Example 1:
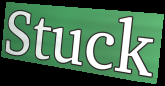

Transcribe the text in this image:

Stuck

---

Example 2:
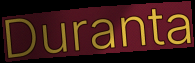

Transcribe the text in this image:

Duranta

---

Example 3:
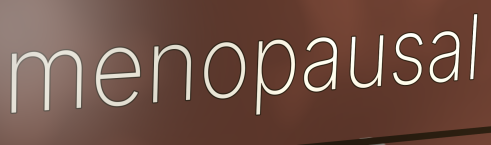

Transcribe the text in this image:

menopausal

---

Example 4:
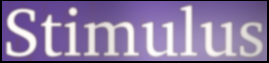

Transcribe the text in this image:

Stimulus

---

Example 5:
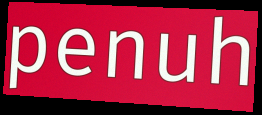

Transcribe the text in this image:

penuh